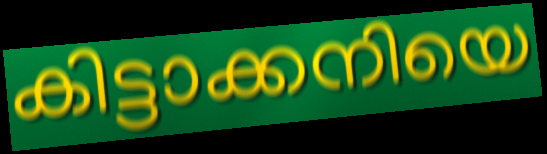
കിട്ടാക്കനിയെ